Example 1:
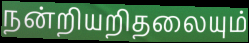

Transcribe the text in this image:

நன்றியறிதலையும்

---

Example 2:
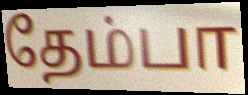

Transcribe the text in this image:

தேம்பா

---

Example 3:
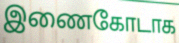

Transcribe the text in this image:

இணைகோடாக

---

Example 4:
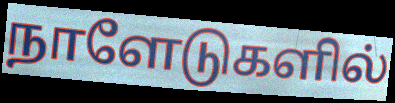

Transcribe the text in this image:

நாளேடுகளில்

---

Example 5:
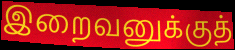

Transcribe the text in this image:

இறைவனுக்குத்